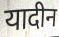
यादीन